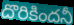
దొరికిందనీ